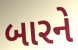
બારને